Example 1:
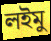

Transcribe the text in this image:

লইমু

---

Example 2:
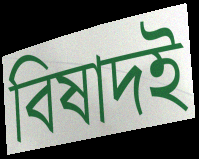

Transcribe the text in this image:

বিষাদই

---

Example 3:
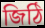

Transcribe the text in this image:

জিঠি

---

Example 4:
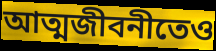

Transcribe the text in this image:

আত্মজীবনীতেও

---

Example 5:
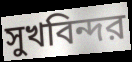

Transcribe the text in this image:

সুখবিন্দর